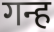
गन्ह